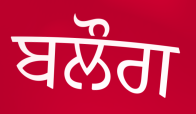
ਬਲੌਗ